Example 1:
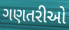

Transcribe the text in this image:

ગણતરીઓ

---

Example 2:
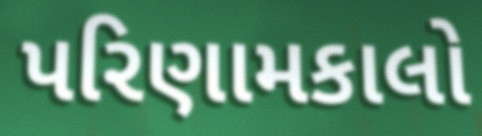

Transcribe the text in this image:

પરિણામકાલો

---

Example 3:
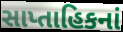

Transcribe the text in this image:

સાપ્તાહિકનાં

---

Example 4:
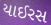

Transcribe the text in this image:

યાઈરસ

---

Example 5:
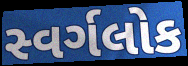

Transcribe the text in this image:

સ્વર્ગલોક